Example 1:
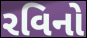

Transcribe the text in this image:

રવિનો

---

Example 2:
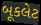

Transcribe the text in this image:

બૂકલેટ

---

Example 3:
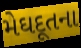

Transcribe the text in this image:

મેઘદૂતના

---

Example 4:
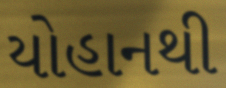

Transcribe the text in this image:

યોહાનથી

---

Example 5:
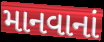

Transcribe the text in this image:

માનવાનાં